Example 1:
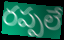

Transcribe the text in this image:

రప్పలే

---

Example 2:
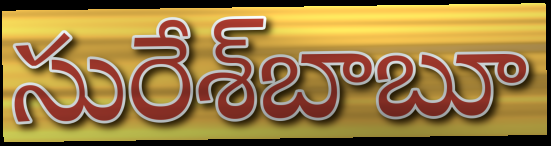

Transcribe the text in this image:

సురేశ్‌బాబూ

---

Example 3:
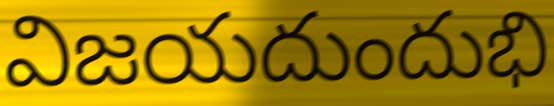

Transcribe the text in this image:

విజయదుందుభి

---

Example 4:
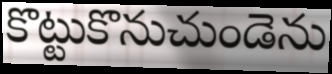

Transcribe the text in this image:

కొట్టుకొనుచుండెను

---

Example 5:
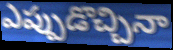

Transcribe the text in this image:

ఎప్పుడొచ్చినా